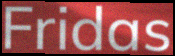
Fridas